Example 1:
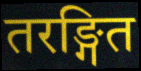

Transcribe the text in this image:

तरङ्गित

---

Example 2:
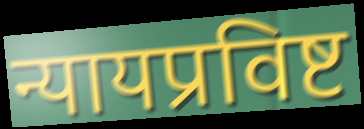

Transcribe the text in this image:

न्यायप्रविष्ट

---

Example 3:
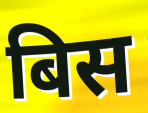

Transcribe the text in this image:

बिस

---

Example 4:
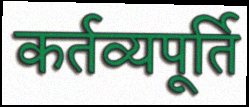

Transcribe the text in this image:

कर्तव्यपूर्ति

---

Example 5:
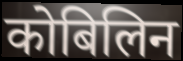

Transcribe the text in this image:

कोबिलिन